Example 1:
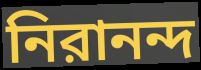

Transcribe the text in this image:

নিরানন্দ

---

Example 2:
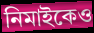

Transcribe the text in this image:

নিমাইকেও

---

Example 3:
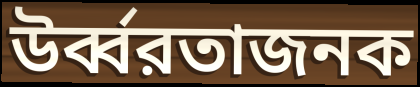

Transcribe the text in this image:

উর্ব্বরতাজনক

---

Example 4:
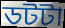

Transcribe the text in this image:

ডটটা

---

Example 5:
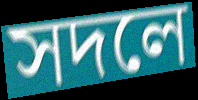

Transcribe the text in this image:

সদলে